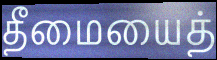
தீமையைத்